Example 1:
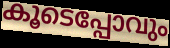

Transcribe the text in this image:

കൂടെപ്പോവും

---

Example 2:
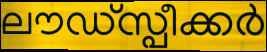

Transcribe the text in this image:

ലൗഡ്സ്പീക്കർ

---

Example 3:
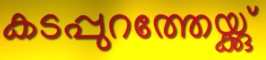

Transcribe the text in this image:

കടപ്പുറത്തേയ്ക്കു്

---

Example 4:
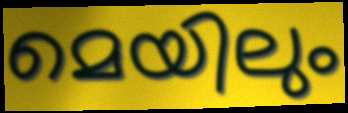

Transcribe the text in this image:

മെയിലും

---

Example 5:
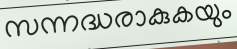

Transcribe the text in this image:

സന്നദ്ധരാകുകയും